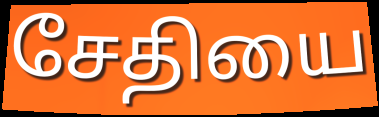
சேதியை